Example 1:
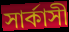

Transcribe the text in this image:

সার্কাসী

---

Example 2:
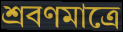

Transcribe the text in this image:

শ্রবণমাত্রে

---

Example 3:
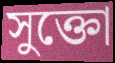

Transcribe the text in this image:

সুক্তো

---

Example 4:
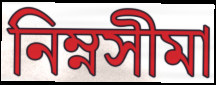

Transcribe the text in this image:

নিম্নসীমা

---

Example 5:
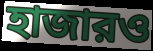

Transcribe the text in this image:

হাজারও